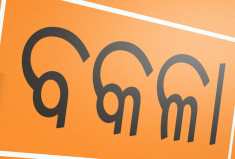
ବକଳା